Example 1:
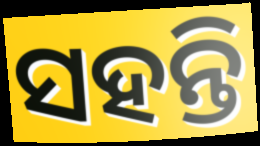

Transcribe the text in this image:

ସହନ୍ତି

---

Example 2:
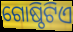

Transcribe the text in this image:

ଗୋଷ୍ଠିଟିଏ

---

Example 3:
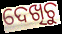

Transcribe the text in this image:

ଦେଖିଚୁ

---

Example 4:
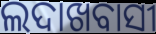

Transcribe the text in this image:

ଲଦାଖବାସୀ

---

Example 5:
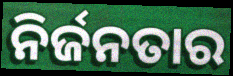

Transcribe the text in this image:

ନିର୍ଜନତାର